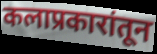
कलाप्रकारांतून